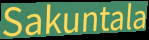
Sakuntala